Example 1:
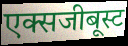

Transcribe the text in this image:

एक्सजीबूस्ट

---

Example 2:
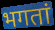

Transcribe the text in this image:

भगतां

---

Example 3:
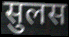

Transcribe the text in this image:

सुलस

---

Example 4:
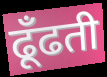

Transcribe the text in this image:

ढूँढती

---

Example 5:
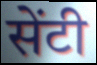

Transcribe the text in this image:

सेंटी